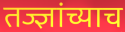
तज्ज्ञांच्याच